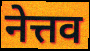
नेत्तव